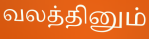
வலத்தினும்